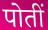
पोतीं